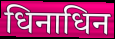
धिनाधिन